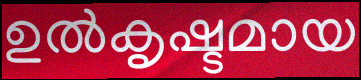
ഉൽകൃഷ്ടമായ